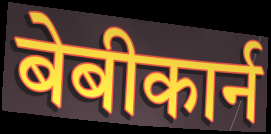
बेबीकार्न